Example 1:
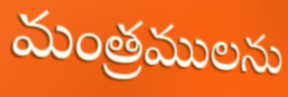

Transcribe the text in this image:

మంత్రములను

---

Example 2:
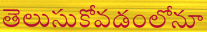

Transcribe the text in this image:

తెలుసుకోవడంలోనూ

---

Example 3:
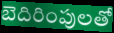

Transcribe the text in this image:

బెదిరింపులతో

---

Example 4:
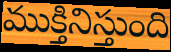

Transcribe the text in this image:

ముక్తినిస్తుంది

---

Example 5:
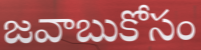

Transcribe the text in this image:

జవాబుకోసం